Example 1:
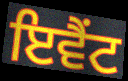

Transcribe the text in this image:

ਇਵੈਂਟ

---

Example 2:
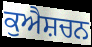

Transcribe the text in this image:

ਕੁਐਸ਼ਚਨ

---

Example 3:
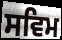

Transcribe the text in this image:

ਸਵਿਮ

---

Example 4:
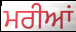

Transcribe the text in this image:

ਮਰੀਆਂ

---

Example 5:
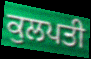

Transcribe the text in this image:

ਕੁਲਪਤੀ